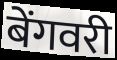
बेंगवरी